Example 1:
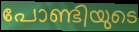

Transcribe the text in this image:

പോണ്ടിയുടെ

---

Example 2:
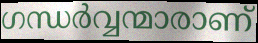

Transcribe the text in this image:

ഗന്ധർവ്വന്മാരാണ്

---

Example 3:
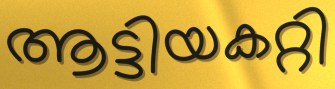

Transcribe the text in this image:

ആട്ടിയകറ്റി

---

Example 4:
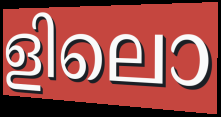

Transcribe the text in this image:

ളിലൊ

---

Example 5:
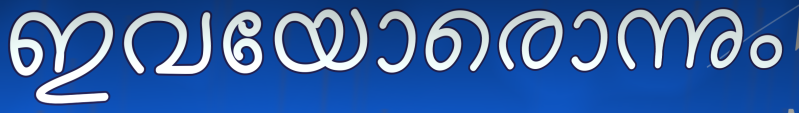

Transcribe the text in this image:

ഇവയോരൊന്നും